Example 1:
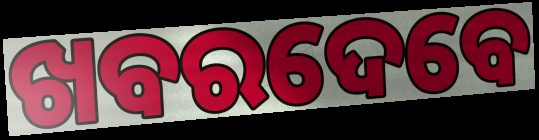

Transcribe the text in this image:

ଖବରଦେବେ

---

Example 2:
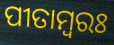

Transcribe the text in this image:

ପୀତାମ୍ୱରଃ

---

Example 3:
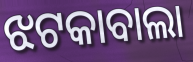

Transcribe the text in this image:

ଝଟକାବାଲା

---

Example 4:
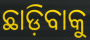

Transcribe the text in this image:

ଛାଡ଼ିବାକୁ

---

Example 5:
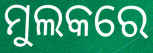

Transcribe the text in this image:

ମୁଲକରେ